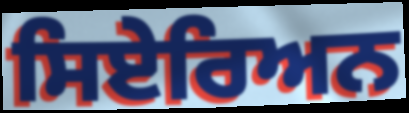
ਸਿਏਰਿਅਨ